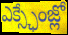
ఎక్స్ఛేంజ్లో